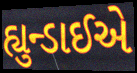
હ્યુન્ડાઈએ